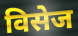
विसेज